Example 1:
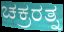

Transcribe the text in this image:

ಚಕ್ರರತ್ನ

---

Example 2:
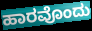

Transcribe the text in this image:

ಹಾರವೊಂದು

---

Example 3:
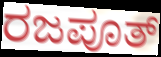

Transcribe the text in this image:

ರಜಪೂತ್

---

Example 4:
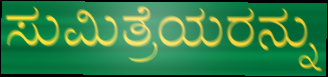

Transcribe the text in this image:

ಸುಮಿತ್ರೆಯರನ್ನು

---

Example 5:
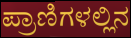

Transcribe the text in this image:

ಪ್ರಾಣಿಗಳಲ್ಲಿನ